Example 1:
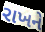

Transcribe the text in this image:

રાખને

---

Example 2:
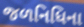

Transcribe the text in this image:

જળનિધિના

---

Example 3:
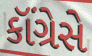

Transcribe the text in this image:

કૉંગ્રેસે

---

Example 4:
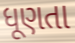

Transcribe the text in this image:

ધૂણતા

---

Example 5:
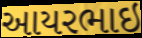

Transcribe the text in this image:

આયરભાઇ